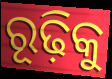
ରୂଢ଼ିକୁ